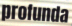
profunda